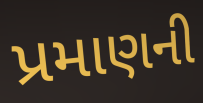
પ્રમાણની